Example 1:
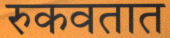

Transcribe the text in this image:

रुकवतात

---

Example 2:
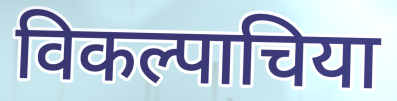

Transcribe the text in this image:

विकल्पाचिया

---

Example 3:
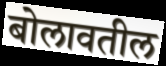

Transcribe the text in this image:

बोलावतील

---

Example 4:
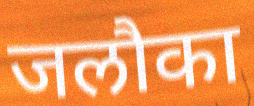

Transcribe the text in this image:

जलौका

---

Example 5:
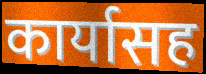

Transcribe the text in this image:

कार्यासह